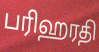
பரிஹரதி